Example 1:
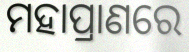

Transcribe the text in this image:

ମହାପ୍ରାଣରେ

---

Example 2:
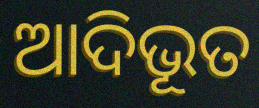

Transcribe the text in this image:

ଆଦିଭୂତ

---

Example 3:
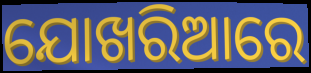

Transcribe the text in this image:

ଯୋଖରିଆରେ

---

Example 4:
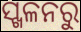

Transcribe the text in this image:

ସ୍ଖଳନରୁ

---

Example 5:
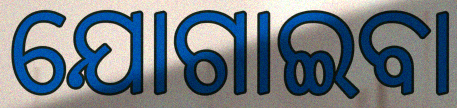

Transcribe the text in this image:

ଯୋଗାଇବା